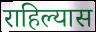
राहिल्यास